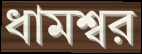
ধামশ্বর